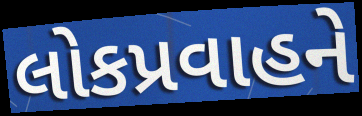
લોકપ્રવાહને